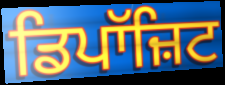
ਡਿਪਾੱਜ਼ਿਟ